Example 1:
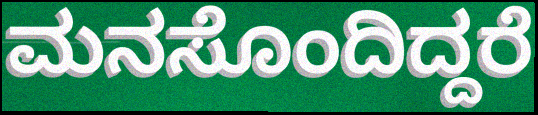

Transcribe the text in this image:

ಮನಸೊಂದಿದ್ದರೆ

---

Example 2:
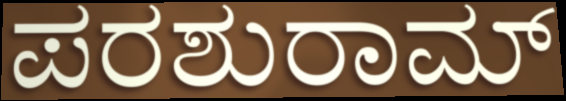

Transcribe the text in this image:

ಪರಶುರಾಮ್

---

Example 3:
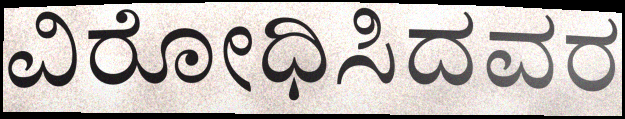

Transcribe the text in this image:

ವಿರೋಧಿಸಿದವರ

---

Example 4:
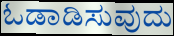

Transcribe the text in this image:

ಓಡಾಡಿಸುವುದು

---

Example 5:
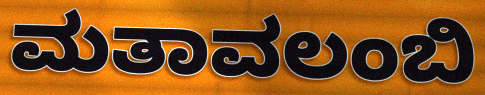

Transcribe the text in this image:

ಮತಾವಲಂಬಿ